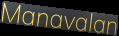
Manavalan